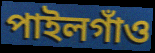
পাইলগাঁও